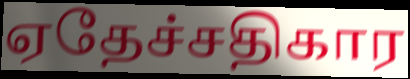
ஏதேச்சதிகார